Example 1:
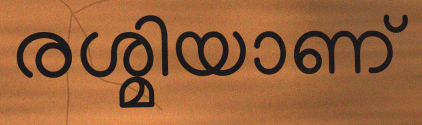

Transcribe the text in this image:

രശ്മിയാണ്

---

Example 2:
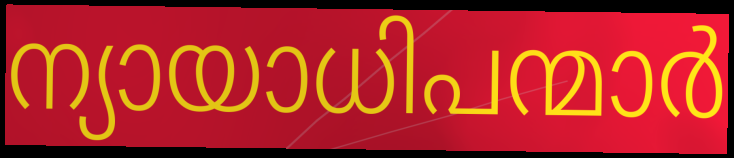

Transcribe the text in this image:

ന്യായാധിപന്മാർ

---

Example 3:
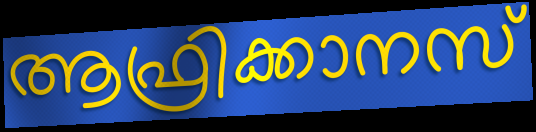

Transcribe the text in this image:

ആഫ്രിക്കാനസ്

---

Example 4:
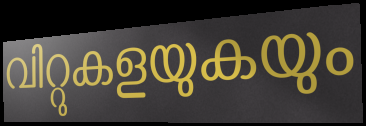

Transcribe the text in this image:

വിറ്റുകളയുകയും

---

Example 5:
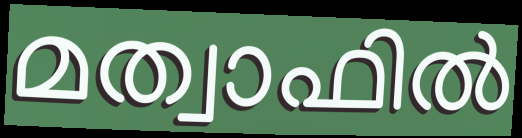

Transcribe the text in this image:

മത്വാഫിൽ